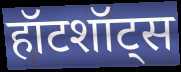
हॉटशॉट्स